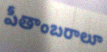
పీతాంబరాలూ